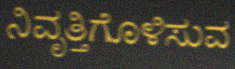
ನಿವೃತ್ತಿಗೊಳಿಸುವ